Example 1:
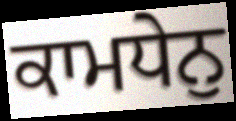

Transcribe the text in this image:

ਕਾਮਧੇਨੁ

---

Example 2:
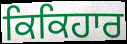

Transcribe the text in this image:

ਕਿਕਿਹਾਰ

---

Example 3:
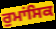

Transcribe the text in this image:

ਰੁਮਾਂਸਿਕ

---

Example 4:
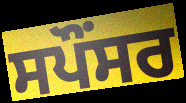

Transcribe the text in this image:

ਸਪੌਂਸਰ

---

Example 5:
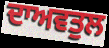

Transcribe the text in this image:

ਦਾਅਵਤੁਲ